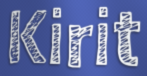
Kirit